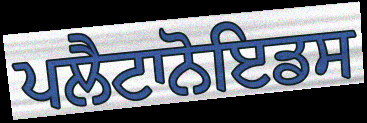
ਪਲੈਟਾਨੋਇਡਸ